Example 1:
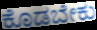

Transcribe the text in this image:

ಕೊಡಬೇಕು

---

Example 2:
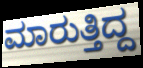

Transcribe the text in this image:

ಮಾರುತ್ತಿದ್ದ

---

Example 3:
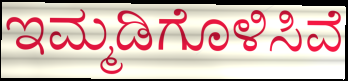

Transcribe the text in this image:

ಇಮ್ಮಡಿಗೊಳಿಸಿವೆ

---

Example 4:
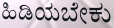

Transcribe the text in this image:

ಹಿಡಿಯಬೇಕು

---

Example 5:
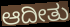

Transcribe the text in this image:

ಆದೀತು